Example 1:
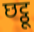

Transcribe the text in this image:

छट्ठू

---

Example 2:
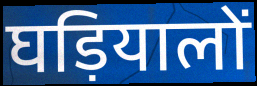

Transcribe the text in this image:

घड़ियालों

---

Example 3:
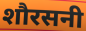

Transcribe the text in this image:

शौरसनी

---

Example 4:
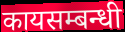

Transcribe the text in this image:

कायसम्बन्धी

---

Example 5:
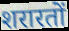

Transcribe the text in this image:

शरारतों